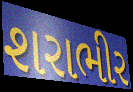
શરાભીર